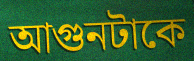
আগুনটাকে